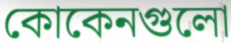
কোকেনগুলো